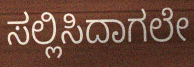
ಸಲ್ಲಿಸಿದಾಗಲೇ